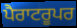
ਪੈਰਾਟਰੂਪਰ